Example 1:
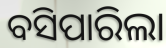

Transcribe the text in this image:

ବସିପାରିଲା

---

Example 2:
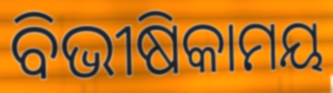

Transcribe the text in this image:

ବିଭୀଷିକାମୟ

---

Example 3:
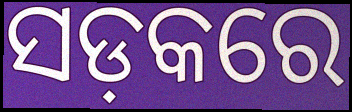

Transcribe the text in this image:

ସଡ଼କରେ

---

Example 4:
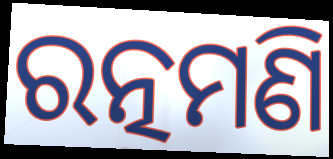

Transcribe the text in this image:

ରତ୍ନମଣି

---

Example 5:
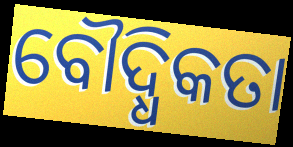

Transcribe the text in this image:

ବୌଦ୍ଧିକତା